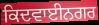
ਕਿਦਵਾਈਨਗਰ